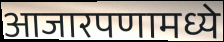
आजारपणामध्ये